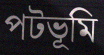
পটভূমি